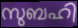
സുബഹി